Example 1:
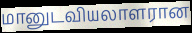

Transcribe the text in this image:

மானுடவியலாளரான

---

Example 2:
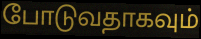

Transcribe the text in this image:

போடுவதாகவும்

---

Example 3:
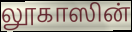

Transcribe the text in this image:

லூகாஸின்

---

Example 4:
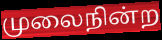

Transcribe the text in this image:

முலைநின்ற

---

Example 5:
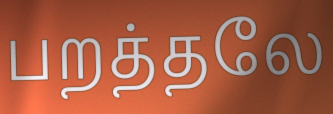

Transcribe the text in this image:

பறத்தலே